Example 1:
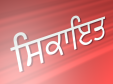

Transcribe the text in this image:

ਸਿਕਾਇਤ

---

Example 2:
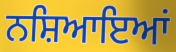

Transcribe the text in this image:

ਨਸ਼ਿਆਇਆਂ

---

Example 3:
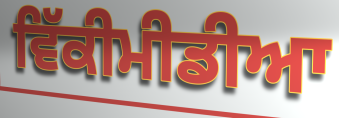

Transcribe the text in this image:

ਵਿੱਕੀਮੀਡੀਆ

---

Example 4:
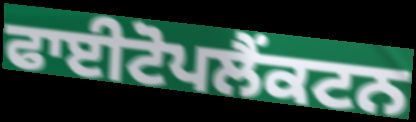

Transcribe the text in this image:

ਫਾਈਟੋਪਲੈਂਕਟਨ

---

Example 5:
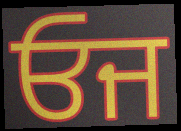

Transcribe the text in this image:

ਓਜ